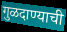
गुळदाण्याची